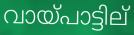
വായ്പാട്ടില്